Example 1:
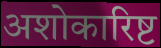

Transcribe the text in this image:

अशोकारिष्ट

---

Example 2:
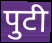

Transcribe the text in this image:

पुटी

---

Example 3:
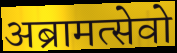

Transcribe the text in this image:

अब्रामत्सेवो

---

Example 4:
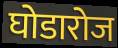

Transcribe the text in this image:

घोडारोज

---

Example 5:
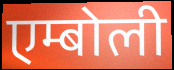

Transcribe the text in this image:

एम्बोली